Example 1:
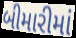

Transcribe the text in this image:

બીમારીમાં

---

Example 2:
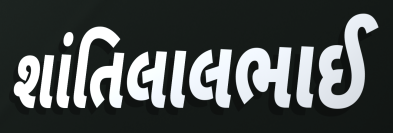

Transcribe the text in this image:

શાંતિલાલભાઈ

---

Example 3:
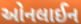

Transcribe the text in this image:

ઓનલાઈન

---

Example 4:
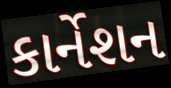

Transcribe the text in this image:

કાર્નેશન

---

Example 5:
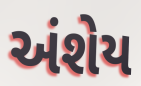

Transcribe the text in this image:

અંશેય